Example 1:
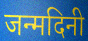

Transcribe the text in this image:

जन्मदिनी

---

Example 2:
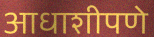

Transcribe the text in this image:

आधाशीपणे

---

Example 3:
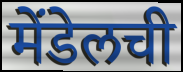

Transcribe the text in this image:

मेंडेलची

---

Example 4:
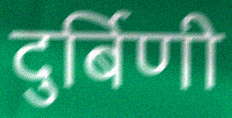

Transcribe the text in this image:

दुर्बिणी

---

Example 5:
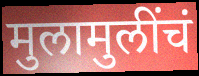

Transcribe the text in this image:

मुलामुलींचं